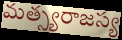
మత్స్యరాజస్య